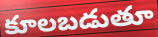
కూలబడుతూ